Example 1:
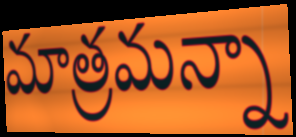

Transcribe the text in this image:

మాత్రమన్నా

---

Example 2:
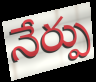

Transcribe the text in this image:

నేర్పు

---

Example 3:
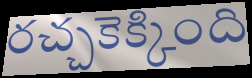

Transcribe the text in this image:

రచ్చకెక్కింది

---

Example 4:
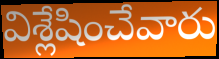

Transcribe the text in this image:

విశ్లేషించేవారు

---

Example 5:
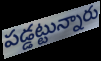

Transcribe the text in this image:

పడ్డట్టున్నారు